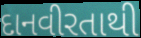
દાનવીરતાથી